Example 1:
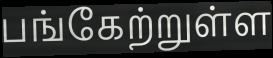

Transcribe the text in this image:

பங்கேற்றுள்ள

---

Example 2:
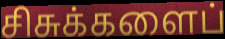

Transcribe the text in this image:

சிசுக்களைப்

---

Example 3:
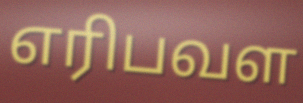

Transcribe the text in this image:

எரிபவள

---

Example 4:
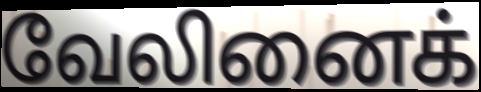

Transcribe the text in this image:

வேலினைக்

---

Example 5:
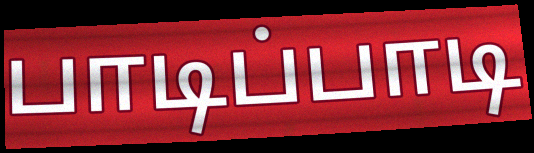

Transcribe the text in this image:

பாடிப்பாடி